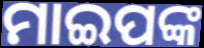
ମାଇପଙ୍କ